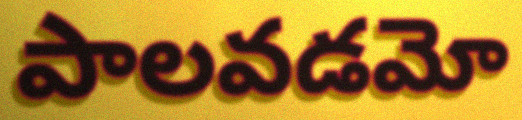
పాలవడమో